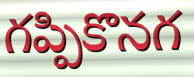
గప్పికొనగ